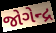
જોગેન્દ્ર